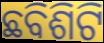
ଛବିଶିଟି